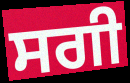
ਸਗੀ